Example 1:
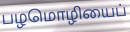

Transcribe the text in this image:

பழமொழியைப்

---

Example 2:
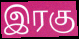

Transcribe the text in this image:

இரகு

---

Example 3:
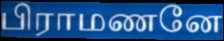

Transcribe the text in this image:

பிராமணனே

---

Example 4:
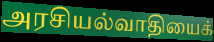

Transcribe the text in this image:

அரசியல்வாதியைக்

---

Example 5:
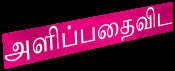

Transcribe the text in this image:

அளிப்பதைவிட